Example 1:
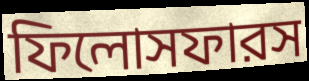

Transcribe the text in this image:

ফিলোসফারস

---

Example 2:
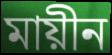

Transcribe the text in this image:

মায়ীন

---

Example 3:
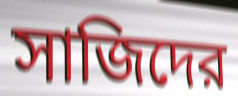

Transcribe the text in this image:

সাজিদের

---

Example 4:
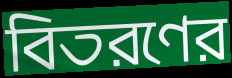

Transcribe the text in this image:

বিতরণের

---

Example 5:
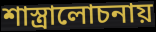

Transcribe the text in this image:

শাস্ত্রালোচনায়